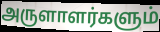
அருளாளர்களும்